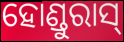
ହୋଣ୍ଡୁରାସ୍